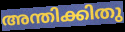
അന്തിക്കിതു